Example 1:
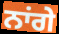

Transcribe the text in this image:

ਨਾਂਗੇ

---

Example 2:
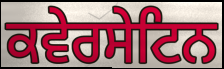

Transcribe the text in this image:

ਕਵੇਰਸੇਟਿਨ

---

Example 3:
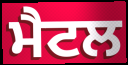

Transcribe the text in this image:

ਮੈਟਲ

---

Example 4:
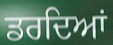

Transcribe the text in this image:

ਡਰਦਿਆਂ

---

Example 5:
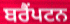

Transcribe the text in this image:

ਬਰੈੰਪਟਨ